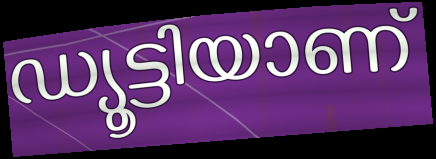
ഡ്യൂട്ടിയാണ്